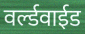
वर्ल्डवाईड